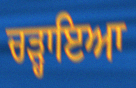
ਚੜ੍ਹਾਇਆ